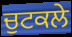
ਚੁਟਕਲੇ